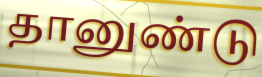
தானுண்டு